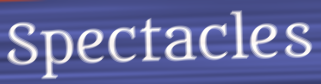
Spectacles